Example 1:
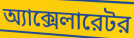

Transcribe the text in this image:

অ্যাক্সেলারেটর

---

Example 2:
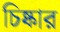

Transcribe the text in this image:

চিষ্কার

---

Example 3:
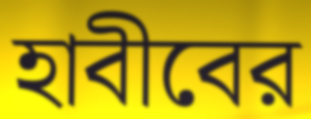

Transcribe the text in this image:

হাবীবের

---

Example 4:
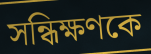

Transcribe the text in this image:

সন্ধিক্ষণকে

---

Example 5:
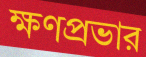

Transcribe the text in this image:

ক্ষণপ্রভার